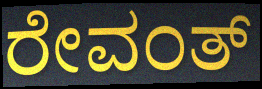
ರೇವಂತ್